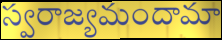
స్వరాజ్యమందామా